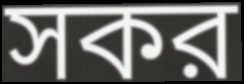
সকর